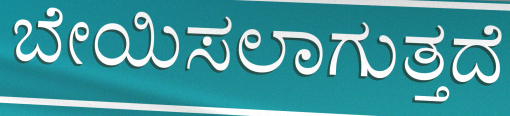
ಬೇಯಿಸಲಾಗುತ್ತದೆ